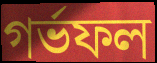
গর্ভফল